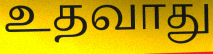
உதவாது